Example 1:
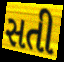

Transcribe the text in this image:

સતી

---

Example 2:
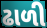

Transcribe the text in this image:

ઢાળી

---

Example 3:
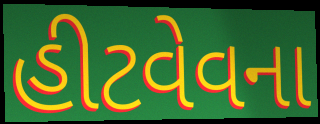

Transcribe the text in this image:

હીટવેવના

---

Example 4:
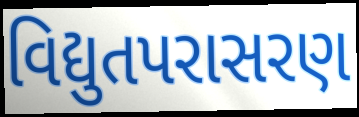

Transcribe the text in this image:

વિદ્યુતપરાસરણ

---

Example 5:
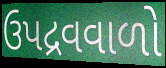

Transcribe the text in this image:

ઉપદ્રવવાળો